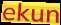
ekun